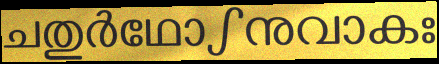
ചതുർഥോഽനുവാകഃ